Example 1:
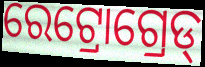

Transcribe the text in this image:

ରେଟ୍ରୋଗ୍ରେଡ୍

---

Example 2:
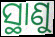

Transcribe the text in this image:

ସ୍ଥାଣୁ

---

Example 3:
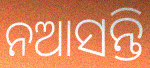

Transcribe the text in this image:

ନଆସନ୍ତି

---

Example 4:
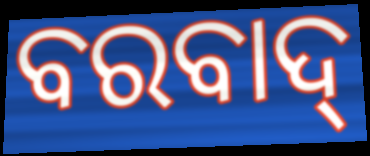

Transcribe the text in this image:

ବରବାଦ୍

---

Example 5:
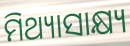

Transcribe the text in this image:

ମିଥ୍ୟାସାକ୍ଷ୍ୟ